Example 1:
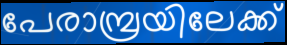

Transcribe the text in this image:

പേരാമ്പ്രയിലേക്ക്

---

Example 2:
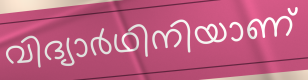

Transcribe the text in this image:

വിദ്യാർഥിനിയാണ്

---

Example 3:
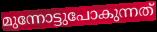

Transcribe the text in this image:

മുന്നോട്ടുപോകുന്നത്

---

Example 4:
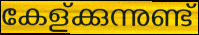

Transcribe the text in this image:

കേള്ക്കുന്നുണ്ട്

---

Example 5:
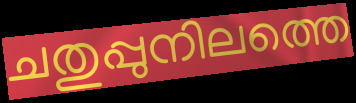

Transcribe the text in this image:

ചതുപ്പുനിലത്തെ